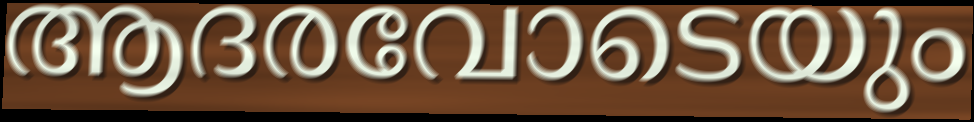
ആദരവോടെയും